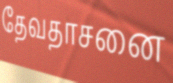
தேவதாசனை